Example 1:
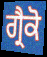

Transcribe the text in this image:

ਗ੍ਰੈਕੋ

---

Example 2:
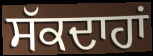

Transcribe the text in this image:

ਸੱਕਦਾਹਾਂ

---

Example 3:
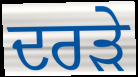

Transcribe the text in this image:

ਦਰੜੇ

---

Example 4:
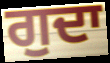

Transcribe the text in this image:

ਗੁਦਾ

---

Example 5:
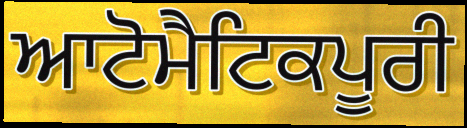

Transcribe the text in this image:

ਆਟੋਮੈਟਿਕਪੂਰੀ